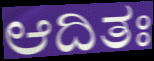
ಆದಿತಃ